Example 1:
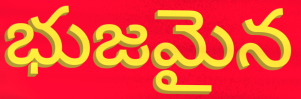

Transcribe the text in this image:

భుజమైన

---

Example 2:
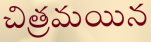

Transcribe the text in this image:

చిత్రమయిన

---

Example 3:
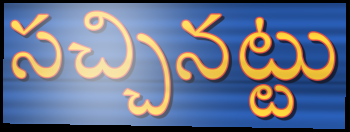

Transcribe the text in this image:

సచ్చినట్టు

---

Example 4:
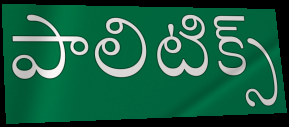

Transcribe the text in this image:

పాలిటిక్స్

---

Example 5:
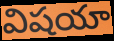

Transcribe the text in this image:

విషయా